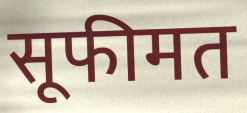
सूफीमत